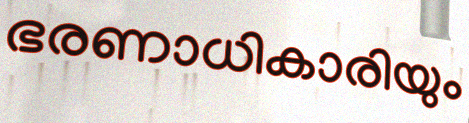
ഭരണാധികാരിയും